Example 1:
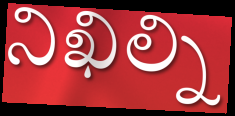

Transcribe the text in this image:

నిఖిల్ని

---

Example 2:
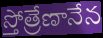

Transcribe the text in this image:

స్తోత్రేణానేన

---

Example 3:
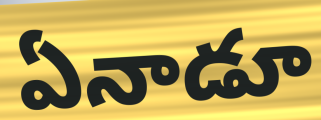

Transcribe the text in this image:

ఏనాడూ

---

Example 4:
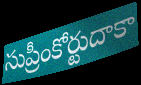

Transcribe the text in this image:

సుప్రీంకోర్టుదాకా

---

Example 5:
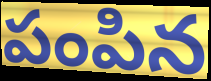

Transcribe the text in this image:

పంపిన